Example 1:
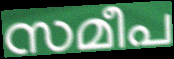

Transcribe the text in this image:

സമീപ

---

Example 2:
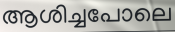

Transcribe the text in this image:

ആശിച്ചപോലെ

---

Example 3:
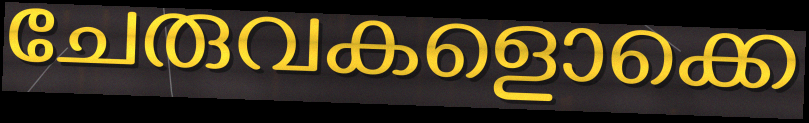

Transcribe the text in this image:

ചേരുവകളൊക്കെ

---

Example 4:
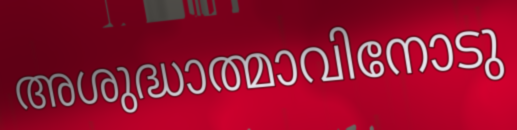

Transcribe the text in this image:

അശുദ്ധാത്മാവിനോടു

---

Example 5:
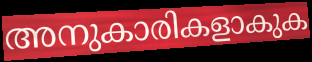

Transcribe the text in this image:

അനുകാരികളാകുക